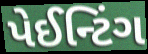
પેઈન્ટિંગ